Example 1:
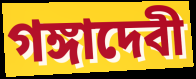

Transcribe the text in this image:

গঙ্গাদেবী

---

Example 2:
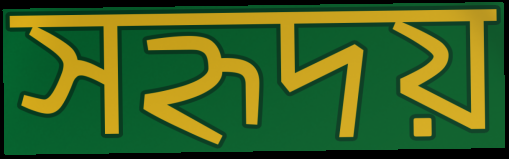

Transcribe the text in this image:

সহৃদয়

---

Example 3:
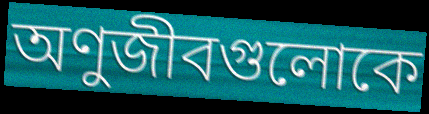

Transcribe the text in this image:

অণুজীবগুলোকে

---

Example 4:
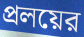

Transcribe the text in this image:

প্রলয়ের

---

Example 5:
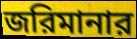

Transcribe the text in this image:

জরিমানার